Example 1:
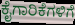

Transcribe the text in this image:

ಕೈಗಾರಿಕೆಗಳಿಗೆ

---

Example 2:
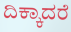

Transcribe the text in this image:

ದಿಕ್ಕಾದರೆ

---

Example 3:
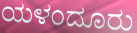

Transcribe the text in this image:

ಯಳಂದೂರು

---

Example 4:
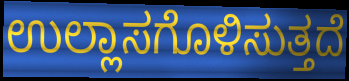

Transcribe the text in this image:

ಉಲ್ಲಾಸಗೊಳಿಸುತ್ತದೆ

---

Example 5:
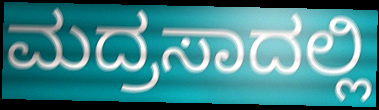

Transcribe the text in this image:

ಮದ್ರಸಾದಲ್ಲಿ